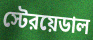
স্টেরয়েডাল